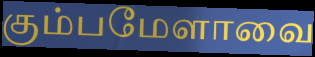
கும்பமேளாவை